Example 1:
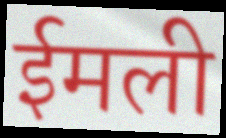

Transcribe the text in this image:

ईमली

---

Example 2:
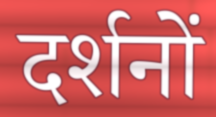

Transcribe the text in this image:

दर्शनों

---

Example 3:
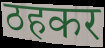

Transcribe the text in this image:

ठहकर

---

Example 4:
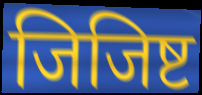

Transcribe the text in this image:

जिजिष्ट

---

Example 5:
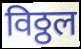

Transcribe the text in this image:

विठ्ठल